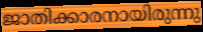
ജാതിക്കാരനായിരുന്നു